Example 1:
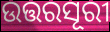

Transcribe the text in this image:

ଉତ୍ତରସୂରୀ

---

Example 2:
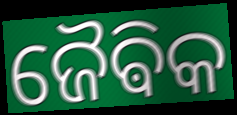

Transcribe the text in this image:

ଜୈଵିକ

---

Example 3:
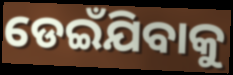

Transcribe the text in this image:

ଡେଇଁଯିବାକୁ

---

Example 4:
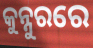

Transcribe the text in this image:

କୁନ୍ନୁରରେ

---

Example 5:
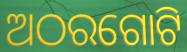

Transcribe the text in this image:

ଅଠରଗୋଟି